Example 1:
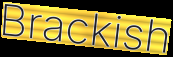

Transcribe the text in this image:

Brackish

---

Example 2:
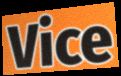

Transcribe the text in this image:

Vice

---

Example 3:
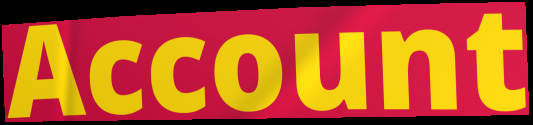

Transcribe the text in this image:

Account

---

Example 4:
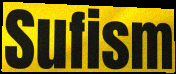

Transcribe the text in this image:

Sufism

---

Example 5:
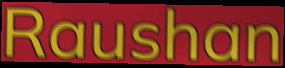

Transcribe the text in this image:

Raushan